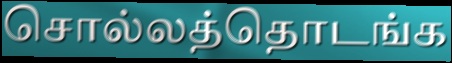
சொல்லத்தொடங்க